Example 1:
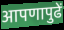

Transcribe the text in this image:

आपणापुढें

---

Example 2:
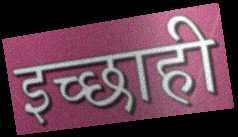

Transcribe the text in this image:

इच्छाही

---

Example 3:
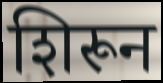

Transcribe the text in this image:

शिरून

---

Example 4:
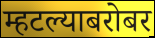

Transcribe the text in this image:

म्हटल्याबरोबर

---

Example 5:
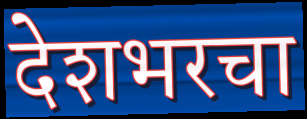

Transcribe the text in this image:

देशभरचा